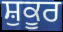
ਸ਼ੁਕੂਰ